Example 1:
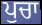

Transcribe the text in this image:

ਪੁਚਾ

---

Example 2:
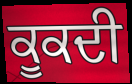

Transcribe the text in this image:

ਕੂਕਦੀ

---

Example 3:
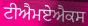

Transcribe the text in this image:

ਟੀਐਮਏਐਕਸ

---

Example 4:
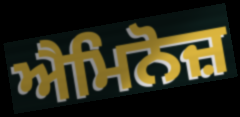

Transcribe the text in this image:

ਐਮਿਨੋਜ਼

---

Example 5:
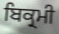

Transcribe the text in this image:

ਬਿਕ੍ਰਮੀ